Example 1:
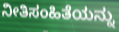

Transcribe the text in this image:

ನೀತಿಸಂಹಿತೆಯನ್ನು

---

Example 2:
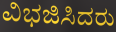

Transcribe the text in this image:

ವಿಭಜಿಸಿದರು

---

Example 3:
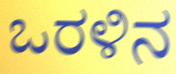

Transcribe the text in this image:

ಒರಳಿನ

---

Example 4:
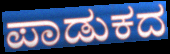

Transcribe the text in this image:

ಪಾಡುಕದ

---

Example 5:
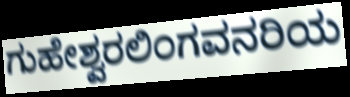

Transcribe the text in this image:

ಗುಹೇಶ್ವರಲಿಂಗವನರಿಯ